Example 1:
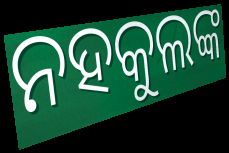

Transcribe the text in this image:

ନହକୁଲଙ୍କ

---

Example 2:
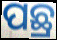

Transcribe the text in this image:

ପଛ୍ର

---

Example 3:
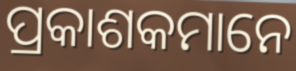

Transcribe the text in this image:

ପ୍ରକାଶକମାନେ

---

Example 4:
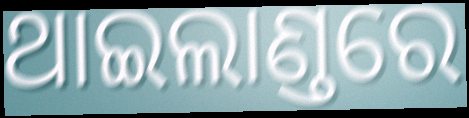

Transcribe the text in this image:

ଥାଇଲାଣ୍ଡରେ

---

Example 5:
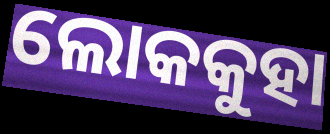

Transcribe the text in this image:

ଲୋକକୁହା